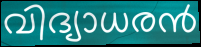
വിദ്യാധരൻ